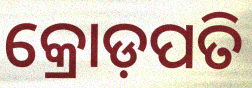
କ୍ରୋଡ଼ପତି